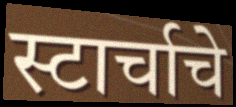
स्टार्चाचे